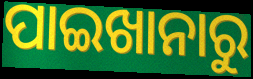
ପାଇଖାନାରୁ